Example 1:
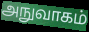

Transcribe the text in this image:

அநுவாகம்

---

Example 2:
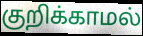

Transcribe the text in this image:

குறிக்காமல்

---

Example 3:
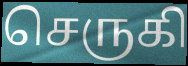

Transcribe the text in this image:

செருகி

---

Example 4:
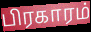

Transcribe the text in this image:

பிரகாரம்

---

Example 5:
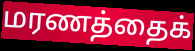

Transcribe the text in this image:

மரணத்தைக்